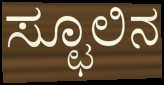
ಸ್ಟೂಲಿನ